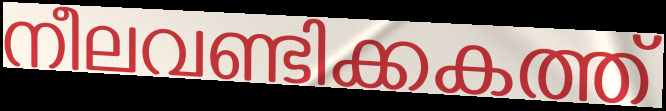
നീലവണ്ടിക്കകത്ത്